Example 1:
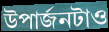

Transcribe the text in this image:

উপার্জনটাও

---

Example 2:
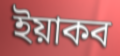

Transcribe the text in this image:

ইয়াকব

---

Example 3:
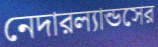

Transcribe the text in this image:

নেদারল্যান্ডসের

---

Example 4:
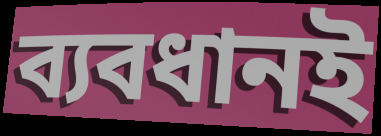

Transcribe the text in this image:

ব্যবধানই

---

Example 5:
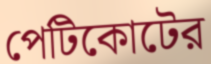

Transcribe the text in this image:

পেটিকোটের